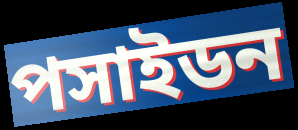
পসাইডন